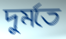
দুর্মতে